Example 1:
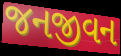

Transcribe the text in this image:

જનજીવન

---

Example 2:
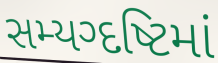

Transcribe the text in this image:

સમ્યગ્દષ્ટિમાં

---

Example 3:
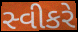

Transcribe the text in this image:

સ્વીકરે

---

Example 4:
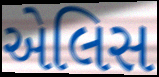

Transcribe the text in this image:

એલિસ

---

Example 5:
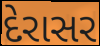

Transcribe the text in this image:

દેરાસર